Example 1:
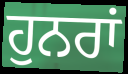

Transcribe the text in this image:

ਹੁਨਰਾਂ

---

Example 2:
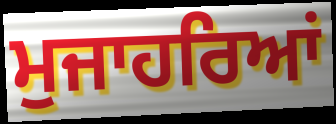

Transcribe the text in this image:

ਮੁਜਾਹਰਿਆਂ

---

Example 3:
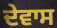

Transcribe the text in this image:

ਦੇਵਾਸ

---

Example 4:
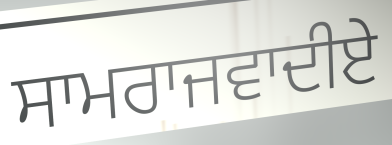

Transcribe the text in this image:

ਸਾਮਰਾਜਵਾਦੀਏ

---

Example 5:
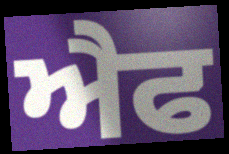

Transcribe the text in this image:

ਐਫ